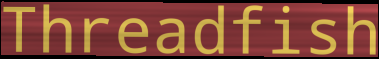
Threadfish